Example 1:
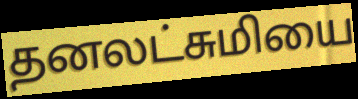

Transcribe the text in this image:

தனலட்சுமியை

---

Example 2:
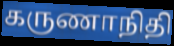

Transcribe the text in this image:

கருணாநிதி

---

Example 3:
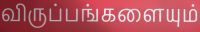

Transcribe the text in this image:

விருப்பங்களையும்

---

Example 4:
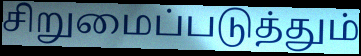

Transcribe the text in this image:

சிறுமைப்படுத்தும்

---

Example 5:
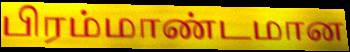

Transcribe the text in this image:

பிரம்மாண்டமான